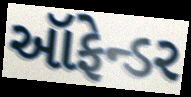
ઑફેન્ડર